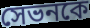
সেভনকে